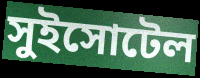
সুইসোটেল